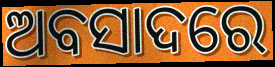
ଅବସାଦରେ